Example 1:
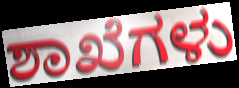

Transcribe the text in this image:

ಶಾಖೆಗಳು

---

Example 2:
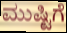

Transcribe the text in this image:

ಮುಷ್ಟಿಗೆ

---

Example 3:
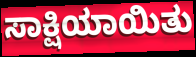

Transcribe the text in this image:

ಸಾಕ್ಷಿಯಾಯಿತು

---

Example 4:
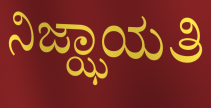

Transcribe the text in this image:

ನಿಜ್ಝಾಯತಿ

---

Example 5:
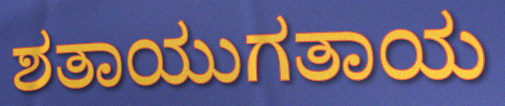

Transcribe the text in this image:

ಶತಾಯುಗತಾಯ